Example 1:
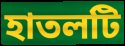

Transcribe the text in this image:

হাতলটি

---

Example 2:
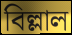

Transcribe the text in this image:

বিল্লাল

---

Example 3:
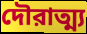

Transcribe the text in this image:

দৌরাত্ম্য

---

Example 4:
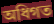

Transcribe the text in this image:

অধিগত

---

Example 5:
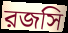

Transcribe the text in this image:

রজসি